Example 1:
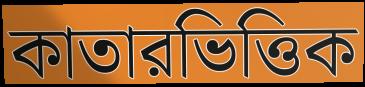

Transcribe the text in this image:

কাতারভিত্তিক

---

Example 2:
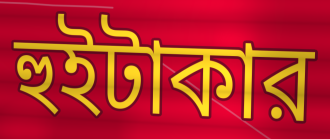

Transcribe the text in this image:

হুইটাকার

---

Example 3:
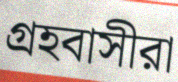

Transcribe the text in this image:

গ্রহবাসীরা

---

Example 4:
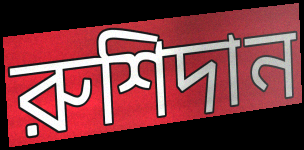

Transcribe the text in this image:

রুশিদান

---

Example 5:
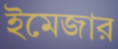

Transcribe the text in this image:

ইমেজার